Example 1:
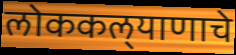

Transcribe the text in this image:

लोककल्याणाचे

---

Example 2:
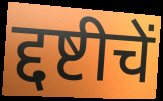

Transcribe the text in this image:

द्दष्टीचें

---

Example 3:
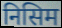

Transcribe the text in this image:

निसिम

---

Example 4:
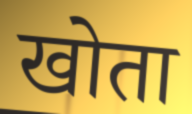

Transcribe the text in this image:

खोता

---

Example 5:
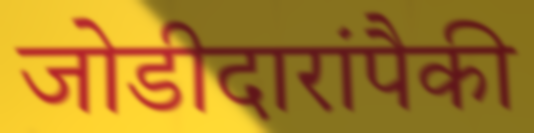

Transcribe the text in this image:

जोडीदारांपैकी